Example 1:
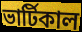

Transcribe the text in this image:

ভার্টিকাল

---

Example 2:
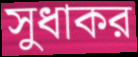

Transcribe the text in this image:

সুধাকর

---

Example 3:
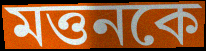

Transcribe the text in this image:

মত্তনকে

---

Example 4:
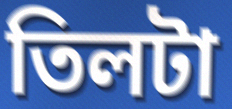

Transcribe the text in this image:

তিলটা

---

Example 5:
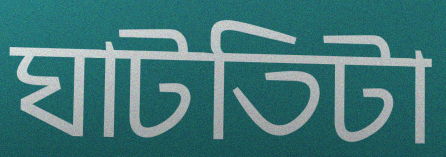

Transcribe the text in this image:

ঘাটতিটা